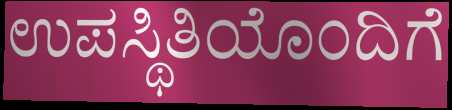
ಉಪಸ್ಥಿತಿಯೊಂದಿಗೆ